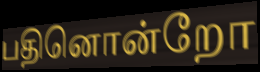
பதினொன்றோ